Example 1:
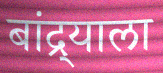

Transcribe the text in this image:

बांद्र्याला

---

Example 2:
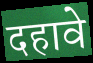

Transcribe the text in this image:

दहावे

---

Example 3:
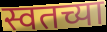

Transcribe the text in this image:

स्वतच्या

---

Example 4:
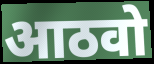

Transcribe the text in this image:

आठवो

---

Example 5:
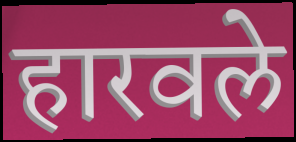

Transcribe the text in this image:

हारवले